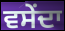
ਵਸੇਂਦਾ